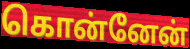
கொன்னேன்